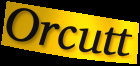
Orcutt